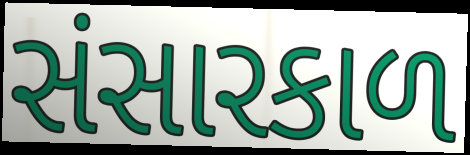
સંસારકાળ